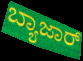
ಬ್ಯಾಜಾರ್